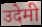
उदेमी